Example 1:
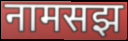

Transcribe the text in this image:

नामसझ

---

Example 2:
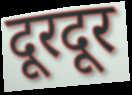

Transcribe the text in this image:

दूरदूर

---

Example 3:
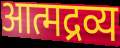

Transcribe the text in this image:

आत्मद्रव्य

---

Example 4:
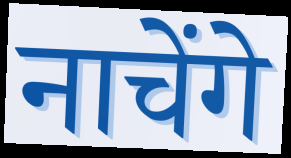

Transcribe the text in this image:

नाचेंगे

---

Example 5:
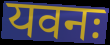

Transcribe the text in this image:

यवनः